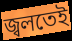
জ্বলতেই